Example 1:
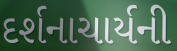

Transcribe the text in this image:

દર્શનાચાર્યની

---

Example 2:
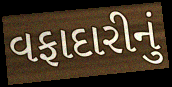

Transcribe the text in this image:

વફાદારીનું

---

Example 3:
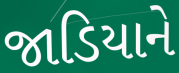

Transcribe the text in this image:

જાડિયાને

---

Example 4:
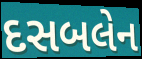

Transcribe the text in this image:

દસબલેન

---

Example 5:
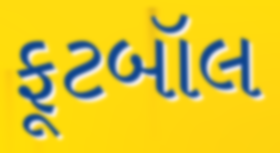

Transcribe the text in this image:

ફૂટબૉલ